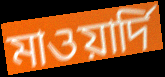
মাওয়ার্দি